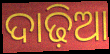
ଦାଢ଼ିଆ